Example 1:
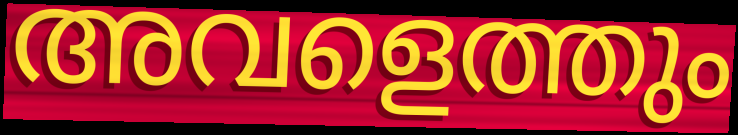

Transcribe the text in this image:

അവളെത്തും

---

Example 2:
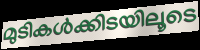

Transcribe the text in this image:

മുടികൾക്കിടയിലൂടെ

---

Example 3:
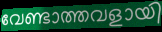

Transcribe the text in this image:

വേണ്ടാത്തവളായി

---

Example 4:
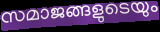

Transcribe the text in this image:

സമാജങ്ങളുടെയും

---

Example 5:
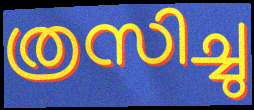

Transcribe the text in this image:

ത്രസിച്ചു